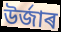
উৰ্জাৰ